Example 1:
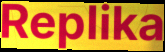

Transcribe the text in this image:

Replika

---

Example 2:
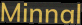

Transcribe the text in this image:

Minnal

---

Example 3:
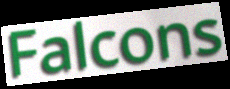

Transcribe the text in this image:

Falcons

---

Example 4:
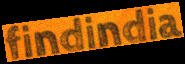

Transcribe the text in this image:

findindia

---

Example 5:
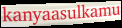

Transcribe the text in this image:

kanyaasulkamu